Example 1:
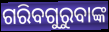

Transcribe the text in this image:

ଗରିବଗୁରୁବାଙ୍କ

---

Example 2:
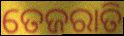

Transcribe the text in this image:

ତେଜରାତି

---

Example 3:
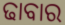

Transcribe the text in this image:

ଢାବାର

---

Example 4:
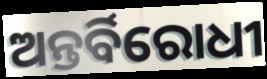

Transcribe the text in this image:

ଅନ୍ତର୍ବିରୋଧୀ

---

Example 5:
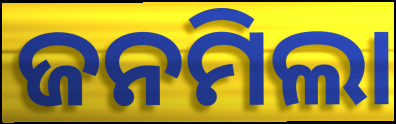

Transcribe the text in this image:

ଜନମିଲା